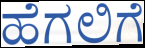
ಹೆಗಲಿಗೆ